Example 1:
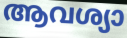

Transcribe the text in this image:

ആവശ്യാ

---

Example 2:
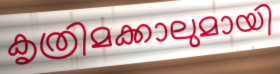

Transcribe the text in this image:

കൃത്രിമക്കാലുമായി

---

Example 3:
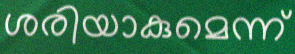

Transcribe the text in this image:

ശരിയാകുമെന്ന്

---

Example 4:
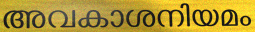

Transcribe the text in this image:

അവകാശനിയമം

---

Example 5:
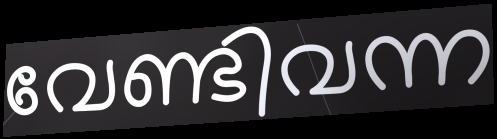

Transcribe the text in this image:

വേണ്ടിവന്ന